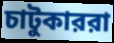
চাটুকাররা